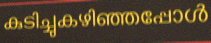
കുടിച്ചുകഴിഞ്ഞപ്പോൾ